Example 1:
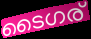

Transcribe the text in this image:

ടൈഗര്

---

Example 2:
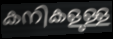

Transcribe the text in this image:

കനികളുള്ള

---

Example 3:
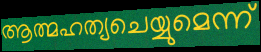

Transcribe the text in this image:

ആത്മഹത്യചെയ്യുമെന്ന്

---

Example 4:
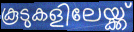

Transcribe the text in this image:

കൂടുകളിലേയ്ക്ക്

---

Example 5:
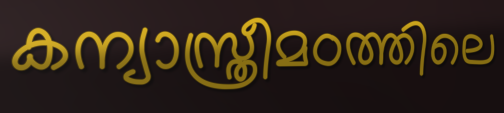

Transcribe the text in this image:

കന്യാസ്ത്രീമഠത്തിലെ